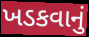
ખડકવાનું